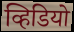
व्हिडियो